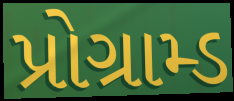
પ્રોગ્રામ્ડ